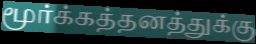
மூர்க்கத்தனத்துக்கு